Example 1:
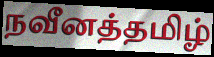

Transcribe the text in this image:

நவீனத்தமிழ்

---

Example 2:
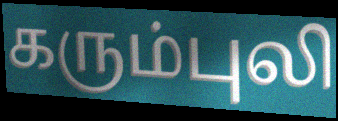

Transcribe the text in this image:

கரும்புலி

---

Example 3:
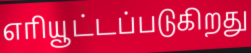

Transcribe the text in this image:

எரியூட்டப்படுகிறது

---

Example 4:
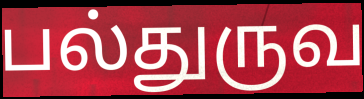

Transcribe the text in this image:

பல்துருவ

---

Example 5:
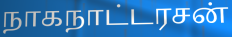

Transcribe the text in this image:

நாகநாட்டரசன்